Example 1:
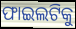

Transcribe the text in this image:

ଫାଇଲଟିକୁ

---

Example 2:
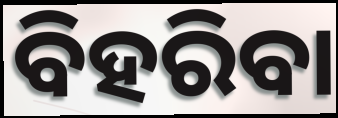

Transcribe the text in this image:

ବିହରିବା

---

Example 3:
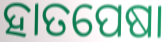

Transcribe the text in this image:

ହାତପେଷା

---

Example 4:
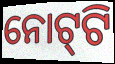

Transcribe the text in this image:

ନୋଟ୍‌ଟି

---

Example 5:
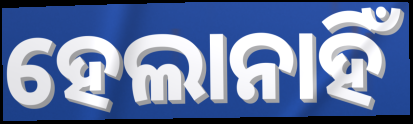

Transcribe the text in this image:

ହେଲାନାହିଁ